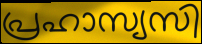
പ്രഹാസ്യസി